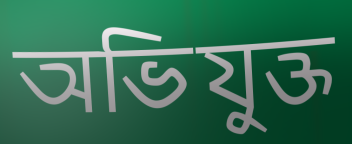
অভিযুক্ত